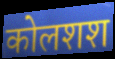
कोलशश